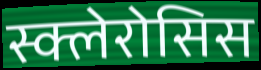
स्क्लेरोसिस